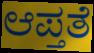
ಆಪ್ತತೆ